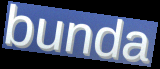
bunda